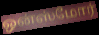
ஒன்ஸ்மோர்